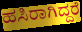
ಹಸಿರಾಗಿದ್ದರೆ